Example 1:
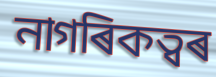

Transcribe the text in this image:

নাগৰিকত্বৰ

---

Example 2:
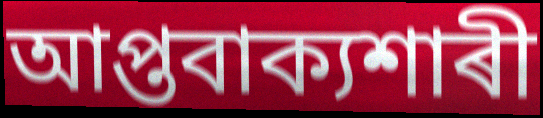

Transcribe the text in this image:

আপ্তবাক্যশাৰী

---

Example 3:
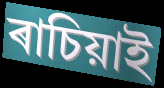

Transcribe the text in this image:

ৰাচিয়াই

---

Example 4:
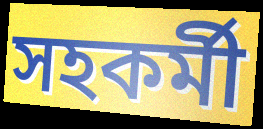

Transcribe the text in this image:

সহকৰ্মী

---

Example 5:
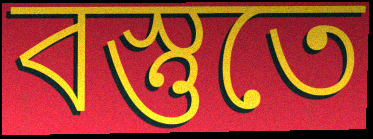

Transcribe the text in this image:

বস্তুতে